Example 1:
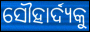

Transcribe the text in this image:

ସୌହାର୍ଦ୍ୟକୁ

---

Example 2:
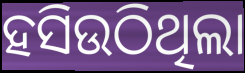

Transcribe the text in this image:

ହସିଉଠିଥିଲା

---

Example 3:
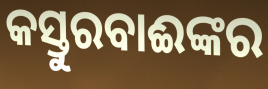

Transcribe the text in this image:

କସ୍ତୁରବାଈଙ୍କର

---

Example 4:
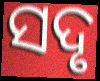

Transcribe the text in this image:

ସଦୃ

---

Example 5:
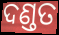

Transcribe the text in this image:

ଦଣ୍ଡତ